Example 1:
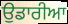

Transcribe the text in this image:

ਉਡਾਰੀਆ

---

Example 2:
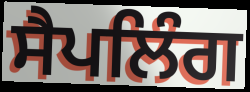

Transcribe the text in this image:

ਸੈਪਲਿੰਗ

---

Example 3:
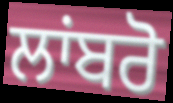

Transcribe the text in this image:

ਲਾਂਬਰੋ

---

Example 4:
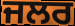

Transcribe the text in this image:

ਜਲਰ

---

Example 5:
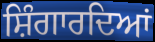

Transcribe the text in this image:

ਸ਼ਿੰਗਾਰਦਿਆਂ